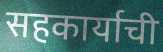
सहकार्याची